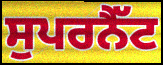
ਸੁਪਰਨੈੱਟ